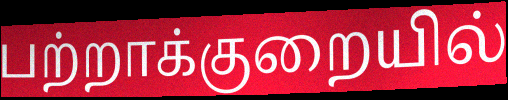
பற்றாக்குறையில்